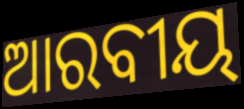
ଆରବୀୟ